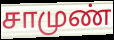
சாமுண்